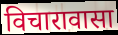
विचारावासा